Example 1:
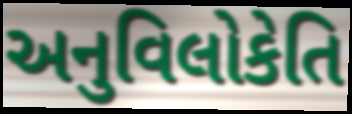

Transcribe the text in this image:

અનુવિલોકેતિ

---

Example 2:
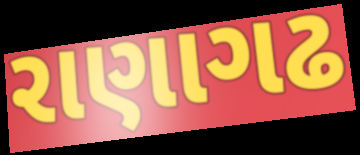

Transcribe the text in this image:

રાણાગઢ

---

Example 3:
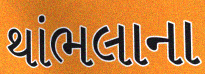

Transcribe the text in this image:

થાંભલાના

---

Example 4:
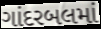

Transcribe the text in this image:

ગાંદરબલમાં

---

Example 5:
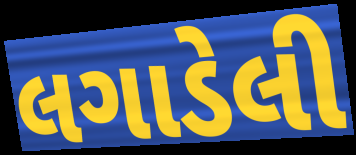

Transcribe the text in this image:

લગાડેલી